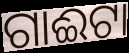
ଗାଈଟା